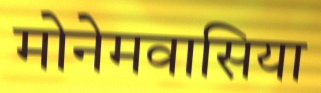
मोनेमवासिया